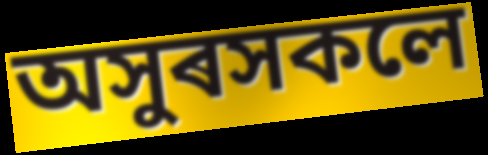
অসুৰসকলে